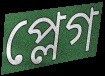
প্লেগ